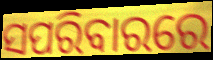
ସପରିବାରରେ